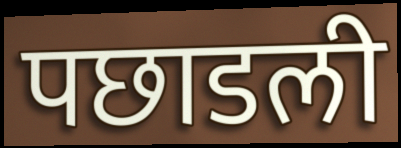
पछाडली